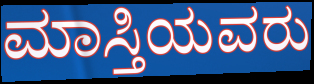
ಮಾಸ್ತಿಯವರು